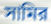
সামির